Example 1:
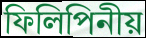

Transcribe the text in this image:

ফিলিপিনীয়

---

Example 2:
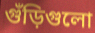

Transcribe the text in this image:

গুঁড়িগুলো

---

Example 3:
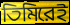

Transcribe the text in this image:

তিমিরেই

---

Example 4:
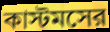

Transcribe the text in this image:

কাস্টমসের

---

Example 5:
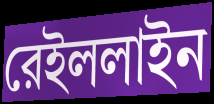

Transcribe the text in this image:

রেইললাইন